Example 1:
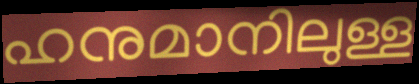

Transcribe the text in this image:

ഹനുമാനിലുള്ള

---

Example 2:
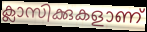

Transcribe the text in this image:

ക്ലാസിക്കുകളാണ്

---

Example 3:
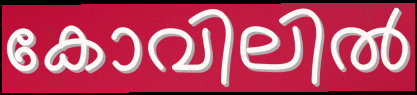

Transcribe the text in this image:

കോവിലിൽ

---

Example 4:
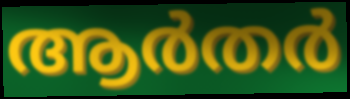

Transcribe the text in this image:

ആർതർ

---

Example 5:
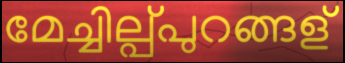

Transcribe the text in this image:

മേച്ചില്പ്പുറങ്ങള്